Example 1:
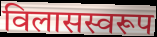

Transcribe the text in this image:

विलासस्वरूप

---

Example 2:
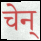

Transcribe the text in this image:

चेन्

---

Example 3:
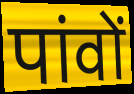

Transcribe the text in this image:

पांवों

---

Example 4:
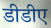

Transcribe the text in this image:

डीडीए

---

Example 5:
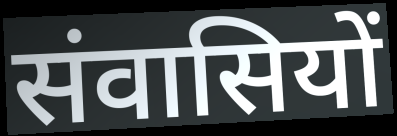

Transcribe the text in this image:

संवासियों